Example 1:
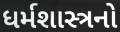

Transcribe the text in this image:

ધર્મશાસ્ત્રનો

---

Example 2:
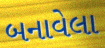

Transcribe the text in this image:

બનાવેલા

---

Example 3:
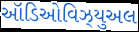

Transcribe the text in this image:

ઑડિઓવિઝ્યુઅલ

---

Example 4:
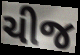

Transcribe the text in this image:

ચીજ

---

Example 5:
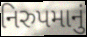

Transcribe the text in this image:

નિરુપમાનું